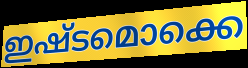
ഇഷ്ടമൊക്കെ